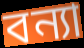
বন্যা